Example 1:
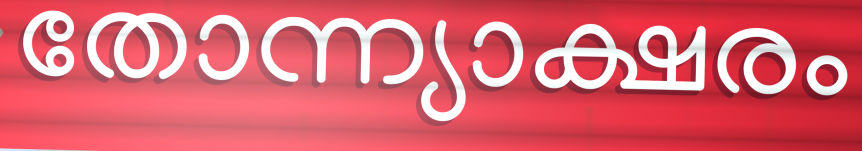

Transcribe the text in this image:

തോന്ന്യാക്ഷരം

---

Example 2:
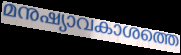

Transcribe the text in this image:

മനുഷ്യാവകാശത്തെ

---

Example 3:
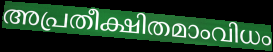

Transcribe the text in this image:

അപ്രതീക്ഷിതമാംവിധം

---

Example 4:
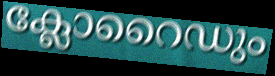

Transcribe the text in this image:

ക്ലോറൈഡും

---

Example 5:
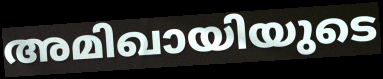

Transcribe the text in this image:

അമിഖായിയുടെ